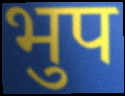
भुप